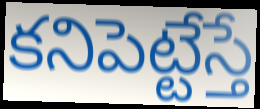
కనిపెట్టేస్తే